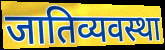
जातिव्यवस्था